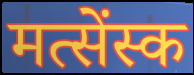
मत्सेंस्क